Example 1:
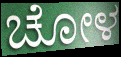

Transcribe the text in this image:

ಚೋಳ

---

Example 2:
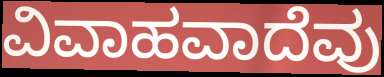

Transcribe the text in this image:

ವಿವಾಹವಾದೆವು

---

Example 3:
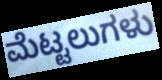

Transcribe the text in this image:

ಮೆಟ್ಟಲುಗಳು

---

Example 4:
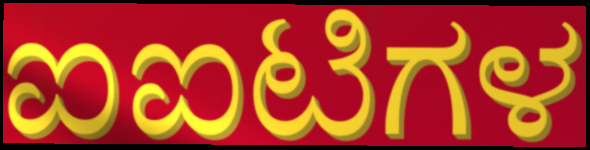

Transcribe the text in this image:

ಐಐಟಿಗಳ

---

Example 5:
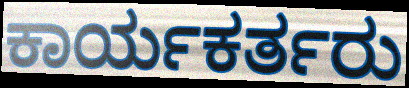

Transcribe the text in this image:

ಕಾರ್ಯಕರ್ತರು